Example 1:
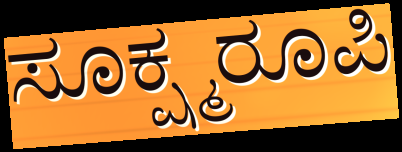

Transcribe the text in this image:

ಸೂಕ್ಷ್ಮರೂಪಿ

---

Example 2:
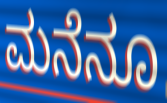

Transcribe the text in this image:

ಮನೆನೂ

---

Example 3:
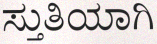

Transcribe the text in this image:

ಸ್ತುತಿಯಾಗಿ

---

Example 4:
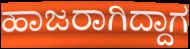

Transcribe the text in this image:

ಹಾಜರಾಗಿದ್ದಾಗ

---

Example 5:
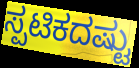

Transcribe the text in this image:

ಸ್ಪಟಿಕದಷ್ಟು